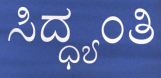
ಸಿದ್ಧ್ಯಂತಿ